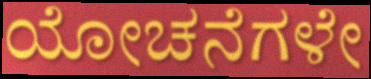
ಯೋಚನೆಗಳೇ